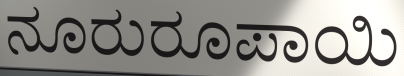
ನೂರುರೂಪಾಯಿ